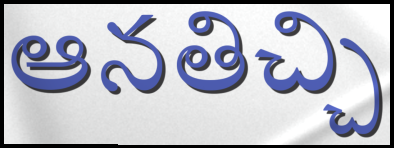
ఆనతిచ్చి